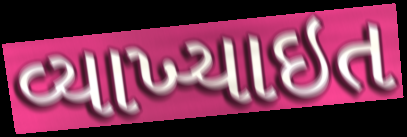
વ્યાખ્યાઇત